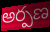
అర్పణ